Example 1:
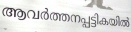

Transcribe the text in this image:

ആവർത്തനപ്പട്ടികയിൽ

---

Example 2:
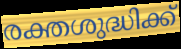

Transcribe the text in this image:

രക്തശുദ്ധിക്ക്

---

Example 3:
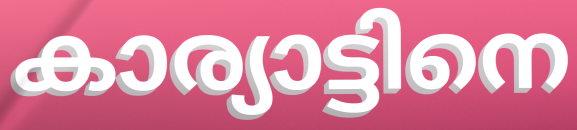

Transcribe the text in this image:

കാര്യാട്ടിനെ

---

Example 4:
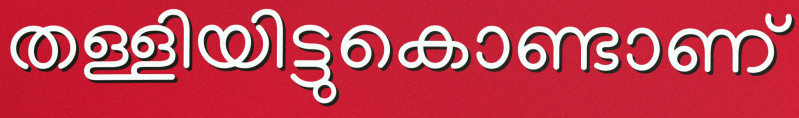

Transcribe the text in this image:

തള്ളിയിട്ടുകൊണ്ടാണ്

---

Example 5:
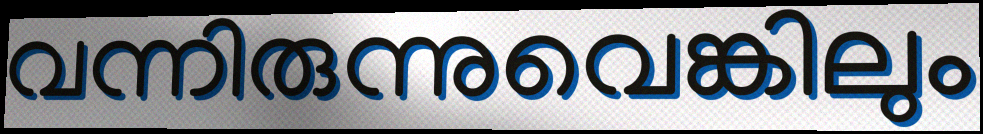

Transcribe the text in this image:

വന്നിരുന്നുവെങ്കിലും